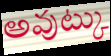
అవుట్కు